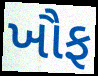
ખૌફ